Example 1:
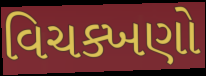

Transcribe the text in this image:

વિચક્ખણો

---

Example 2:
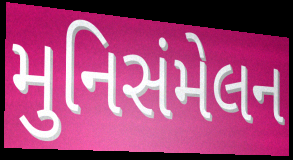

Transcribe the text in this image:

મુનિસંમેલન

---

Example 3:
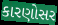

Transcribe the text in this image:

કારણોસર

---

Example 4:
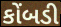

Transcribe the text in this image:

કોંબડી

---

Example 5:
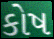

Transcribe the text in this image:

કોષ